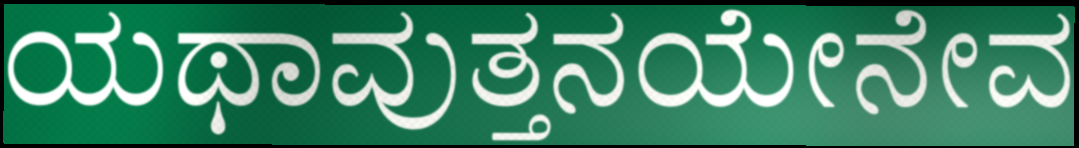
ಯಥಾವುತ್ತನಯೇನೇವ